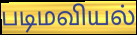
படிமவியல்